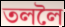
তললৈ